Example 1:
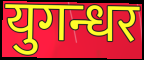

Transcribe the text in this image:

युगन्धर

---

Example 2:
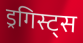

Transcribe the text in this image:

ड्रगिस्ट्स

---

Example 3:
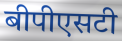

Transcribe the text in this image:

बीपीएसटी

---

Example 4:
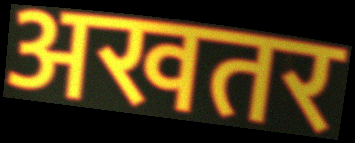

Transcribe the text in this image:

अखतर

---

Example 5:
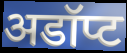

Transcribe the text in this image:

अडॉप्‍ट